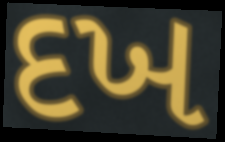
દખ